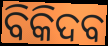
ବିକିଦବ